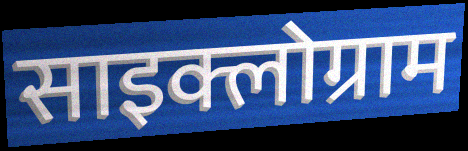
साइक्लोग्राम